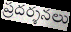
ప్రదర్శనలు